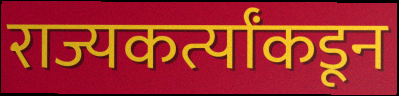
राज्यकर्त्यांकडून